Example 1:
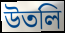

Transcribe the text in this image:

উতলি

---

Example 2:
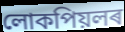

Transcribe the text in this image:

লোকপিয়লৰ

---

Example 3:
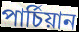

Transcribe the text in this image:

পাৰ্চিয়ান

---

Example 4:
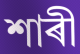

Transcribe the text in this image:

শাৰী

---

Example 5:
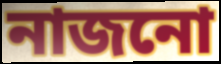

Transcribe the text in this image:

নাজনো